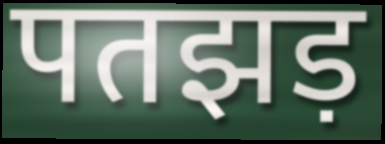
पतझड़